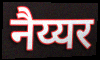
नैय्यर